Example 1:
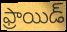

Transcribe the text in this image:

ఫ్రాయిడ్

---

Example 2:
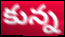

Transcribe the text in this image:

కున్న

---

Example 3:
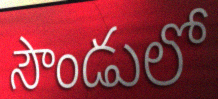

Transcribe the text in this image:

సౌండులో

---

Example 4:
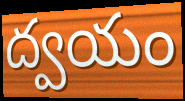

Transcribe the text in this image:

ద్వయం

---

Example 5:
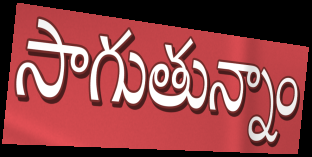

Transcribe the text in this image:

సాగుతున్నాం